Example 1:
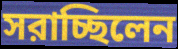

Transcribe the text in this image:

সরাচ্ছিলেন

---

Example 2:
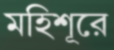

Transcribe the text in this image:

মহিশূরে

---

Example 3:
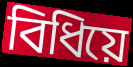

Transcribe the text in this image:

বিধিয়ে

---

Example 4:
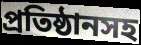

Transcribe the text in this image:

প্রতিষ্ঠানসহ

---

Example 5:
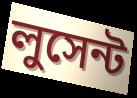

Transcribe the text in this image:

লুসেন্ট